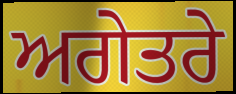
ਅਗੇਤਰੇ